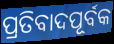
ପ୍ରତିବାଦପୂର୍ବକ